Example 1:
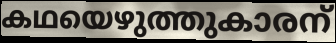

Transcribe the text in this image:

കഥയെഴുത്തുകാരന്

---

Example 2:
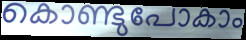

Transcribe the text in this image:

കൊണ്ടുപോകാം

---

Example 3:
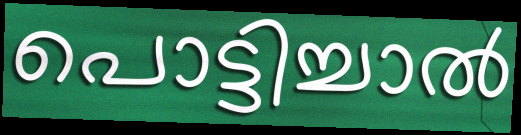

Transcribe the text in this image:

പൊട്ടിച്ചാൽ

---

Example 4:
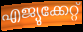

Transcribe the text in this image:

എജ്യുക്കേറ്റ്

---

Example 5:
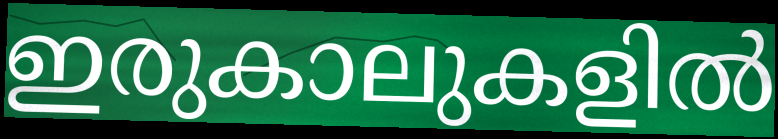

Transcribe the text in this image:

ഇരുകാലുകളിൽ